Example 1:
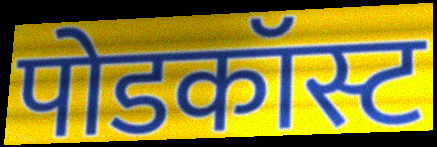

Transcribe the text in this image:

पोडकॉस्ट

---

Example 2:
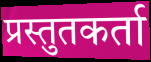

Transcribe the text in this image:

प्रस्तुतकर्ता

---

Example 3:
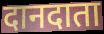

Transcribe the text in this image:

दानदाता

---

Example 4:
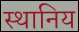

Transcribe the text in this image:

स्थानिय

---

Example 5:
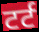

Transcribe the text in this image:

टर्ट